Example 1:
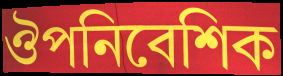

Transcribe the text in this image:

ঔপনিবেশিক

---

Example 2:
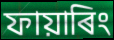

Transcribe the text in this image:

ফায়াৰিং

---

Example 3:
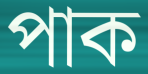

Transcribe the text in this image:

পাক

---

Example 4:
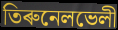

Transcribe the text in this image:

তিৰুনেলভেলী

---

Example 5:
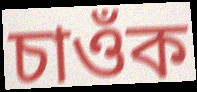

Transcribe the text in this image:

চাওঁক